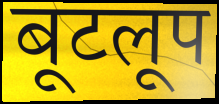
बूटलूप